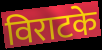
विराटके